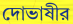
দোভাষীর